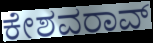
ಕೇಶವರಾವ್